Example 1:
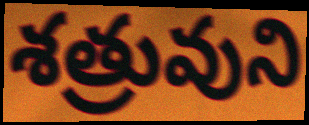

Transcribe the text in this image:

శత్రువుని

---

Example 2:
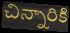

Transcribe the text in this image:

చిన్నారికి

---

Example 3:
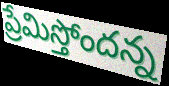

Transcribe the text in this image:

ప్రేమిస్తోందన్న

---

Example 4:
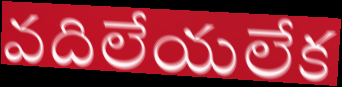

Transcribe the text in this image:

వదిలేయలేక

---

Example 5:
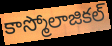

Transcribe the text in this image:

కాస్మోలాజికల్